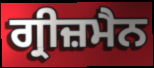
ਗ੍ਰੀਜ਼ਮੈਨ